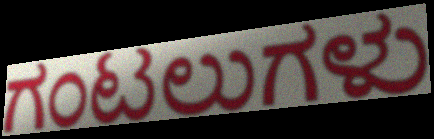
ಗಂಟಲುಗಳು